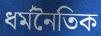
ধর্মনৈতিক